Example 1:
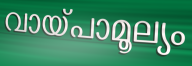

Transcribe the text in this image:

വായ്പാമൂല്യം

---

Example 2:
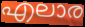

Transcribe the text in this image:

എലാര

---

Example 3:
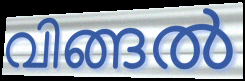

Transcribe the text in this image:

വിങ്ങൽ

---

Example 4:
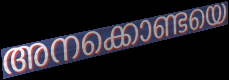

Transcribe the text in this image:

അനക്കൊണ്ടയെ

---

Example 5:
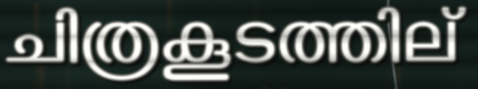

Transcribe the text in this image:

ചിത്രകൂടത്തില്